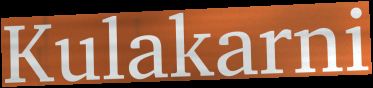
Kulakarni